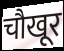
चौखूर